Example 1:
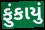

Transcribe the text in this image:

ફુંકાયું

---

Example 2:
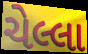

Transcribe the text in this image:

ચેલ્લા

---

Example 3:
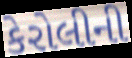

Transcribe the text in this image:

કેરોલીની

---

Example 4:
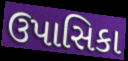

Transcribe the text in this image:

ઉપાસિકા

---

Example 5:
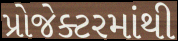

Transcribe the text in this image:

પ્રોજેક્ટરમાંથી